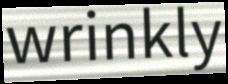
wrinkly